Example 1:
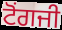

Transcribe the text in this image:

ਟੋਂਗਜੀ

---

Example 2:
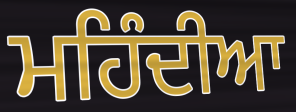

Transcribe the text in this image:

ਮਹਿੰਦੀਆ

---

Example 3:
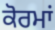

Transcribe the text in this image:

ਕੋਰਮਾਂ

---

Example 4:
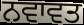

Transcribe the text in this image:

ਨਵਾਵਤ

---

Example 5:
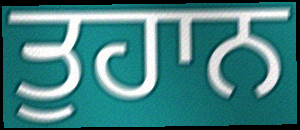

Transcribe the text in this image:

ਤੁਹਾਨ